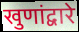
खुणांद्वारे